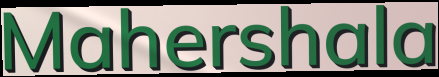
Mahershala